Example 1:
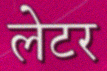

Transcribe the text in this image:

लेटर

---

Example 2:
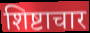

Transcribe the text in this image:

शिष्टाचार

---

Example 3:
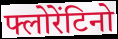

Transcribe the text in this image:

फ्लोरेंटिनो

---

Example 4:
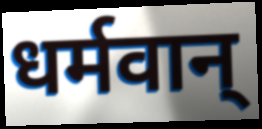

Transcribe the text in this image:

धर्मवान्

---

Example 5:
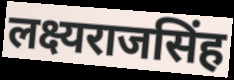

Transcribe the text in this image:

लक्ष्यराजसिंह